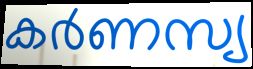
കർണസ്യ